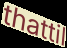
thattil